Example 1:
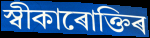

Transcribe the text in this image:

স্বীকাৰোক্তিৰ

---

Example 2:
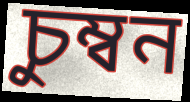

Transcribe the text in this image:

চুম্বন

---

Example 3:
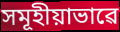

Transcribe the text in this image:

সমূহীয়াভাৱে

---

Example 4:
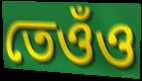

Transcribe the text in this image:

তেওঁও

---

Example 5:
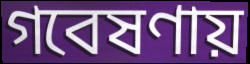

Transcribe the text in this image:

গবেষণায়